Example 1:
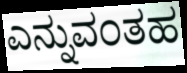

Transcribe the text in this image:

ಎನ್ನುವಂತಹ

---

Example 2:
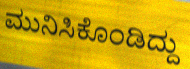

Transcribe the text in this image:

ಮುನಿಸಿಕೊಂಡಿದ್ದು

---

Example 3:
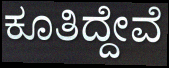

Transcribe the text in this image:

ಕೂತಿದ್ದೇವೆ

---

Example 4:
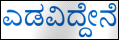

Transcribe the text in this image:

ಎಡವಿದ್ದೇನೆ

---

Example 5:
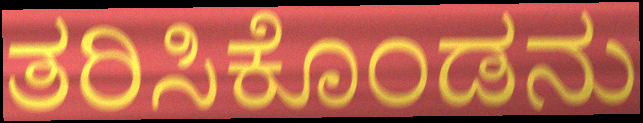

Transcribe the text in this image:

ತರಿಸಿಕೊಂಡನು